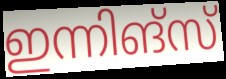
ഇന്നിങ്സ്